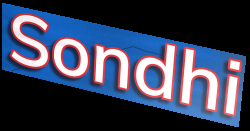
Sondhi